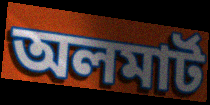
অলমার্ট